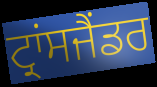
ਟ੍ਰਾਂਸਜੈਂਡਰ